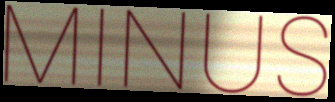
MINUS